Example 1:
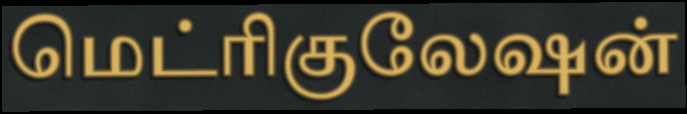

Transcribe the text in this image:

மெட்ரிகுலேஷன்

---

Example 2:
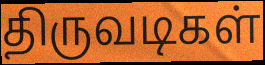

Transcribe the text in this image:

திருவடிகள்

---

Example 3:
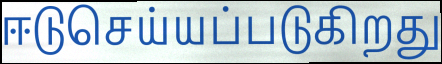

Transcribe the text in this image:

ஈடுசெய்யப்படுகிறது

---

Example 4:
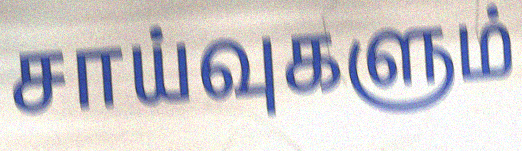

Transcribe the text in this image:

சாய்வுகளும்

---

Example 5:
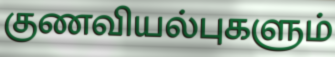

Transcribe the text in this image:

குணவியல்புகளும்